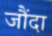
जौंदा